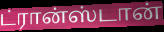
ட்ரான்ஸ்டான்